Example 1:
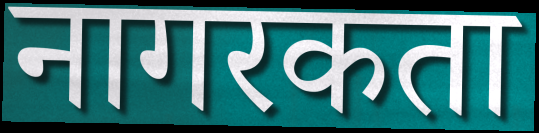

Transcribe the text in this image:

नागरकता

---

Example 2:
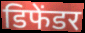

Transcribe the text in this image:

डिफेंडर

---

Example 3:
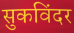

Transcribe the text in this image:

सुकविंदर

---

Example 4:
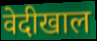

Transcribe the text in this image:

वेदीखाल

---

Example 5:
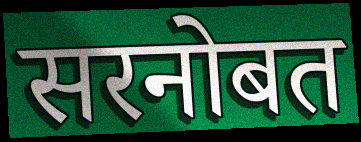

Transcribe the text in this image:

सरनोबत